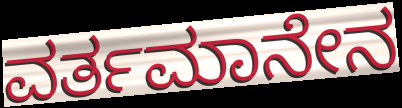
ವರ್ತಮಾನೇನ